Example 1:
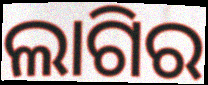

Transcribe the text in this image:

ଲାଗିର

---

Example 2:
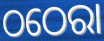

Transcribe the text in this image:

ଠଠେରା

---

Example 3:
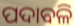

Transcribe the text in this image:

ପଦାବଳି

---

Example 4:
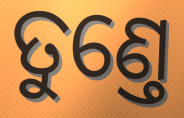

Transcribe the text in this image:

ତୁଣ୍ତେ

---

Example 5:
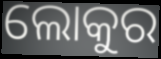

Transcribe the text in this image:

ଲୋକୁର